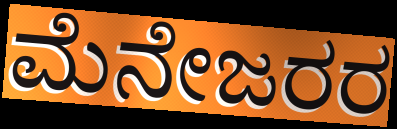
ಮೆನೇಜರರ